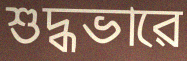
শুদ্ধভাৱে